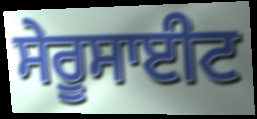
ਸੇਰੂਸਾਈਟ